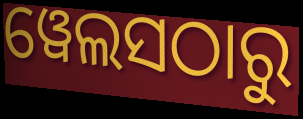
ୱେଲସଠାରୁ